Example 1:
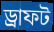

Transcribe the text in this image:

ড্রাফট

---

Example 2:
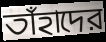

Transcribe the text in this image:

তাঁহাদের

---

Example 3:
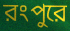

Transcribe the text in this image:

রংপুরে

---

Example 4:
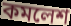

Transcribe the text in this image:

কমলেশ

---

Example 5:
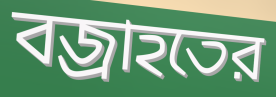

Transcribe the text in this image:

বজ্রাহতের